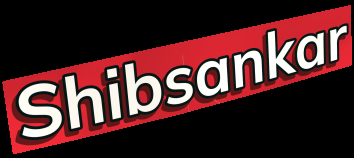
Shibsankar